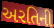
અરતિની